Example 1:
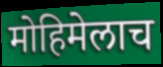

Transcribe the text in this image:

मोहिमेलाच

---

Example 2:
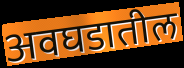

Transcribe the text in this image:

अवघडातील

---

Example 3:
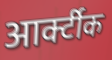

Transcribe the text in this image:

आर्क्टीक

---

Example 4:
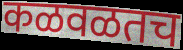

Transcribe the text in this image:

कळवळतच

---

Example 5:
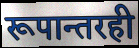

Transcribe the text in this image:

रूपान्तरही